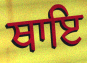
ਥਾਇ